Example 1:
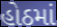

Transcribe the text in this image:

હોઠમાં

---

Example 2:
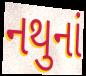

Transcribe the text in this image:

નથુનાં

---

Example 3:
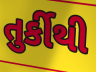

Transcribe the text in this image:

તુર્કીથી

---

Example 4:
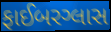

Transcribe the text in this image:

ફાઈબરગ્લાસ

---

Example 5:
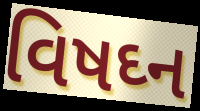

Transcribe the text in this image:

વિષઘ્ન